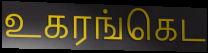
உகரங்கெட